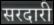
सरदारी